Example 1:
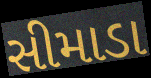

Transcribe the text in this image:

સીમાડા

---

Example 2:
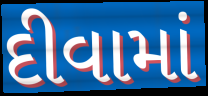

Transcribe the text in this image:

દીવામાં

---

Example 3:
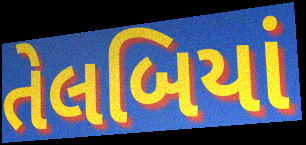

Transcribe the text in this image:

તેલબિયાં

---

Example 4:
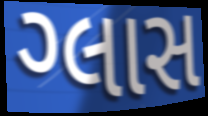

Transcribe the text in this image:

ગ્લાસ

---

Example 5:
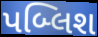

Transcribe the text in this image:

પબ્લિશ